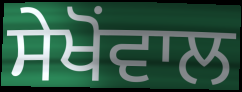
ਸੇਖੋਂਵਾਲ